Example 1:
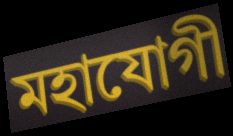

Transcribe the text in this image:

মহাযোগী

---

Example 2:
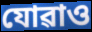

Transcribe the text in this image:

যোৱাও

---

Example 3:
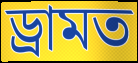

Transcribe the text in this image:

ড্ৰামত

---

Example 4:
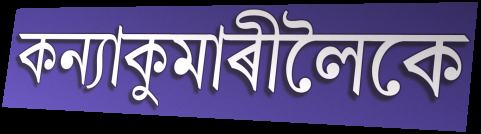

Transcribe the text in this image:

কন্যাকুমাৰীলৈকে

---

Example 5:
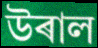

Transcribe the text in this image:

উৰাল